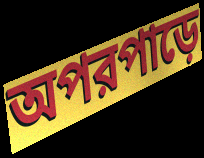
অপরপাড়ে